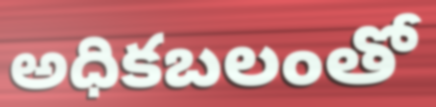
అధికబలంతో